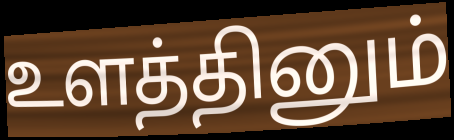
உளத்தினும்